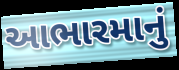
આભારમાનું